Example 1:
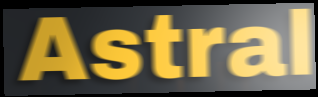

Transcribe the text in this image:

Astral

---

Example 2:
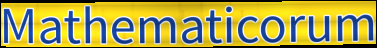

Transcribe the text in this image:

Mathematicorum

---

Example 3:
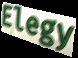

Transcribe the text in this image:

Elegy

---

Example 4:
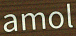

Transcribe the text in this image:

amol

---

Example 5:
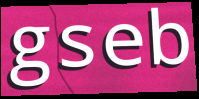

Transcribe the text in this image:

gseb